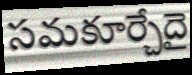
సమకూర్చేదై